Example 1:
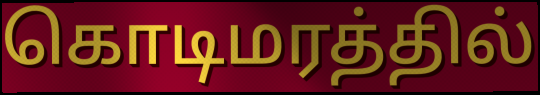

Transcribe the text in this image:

கொடிமரத்தில்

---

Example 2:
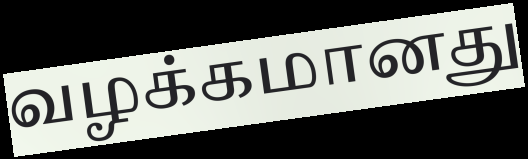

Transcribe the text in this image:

வழக்கமானது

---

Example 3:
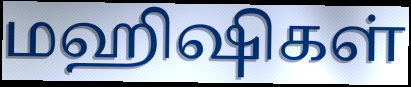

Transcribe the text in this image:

மஹிஷிகள்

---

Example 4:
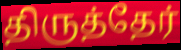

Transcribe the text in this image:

திருத்தேர்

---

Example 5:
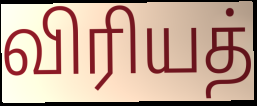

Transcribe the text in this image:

விரியத்